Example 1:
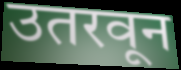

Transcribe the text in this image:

उतरवून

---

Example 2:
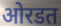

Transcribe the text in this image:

ओरडत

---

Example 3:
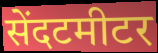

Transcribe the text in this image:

सेंदटमीटर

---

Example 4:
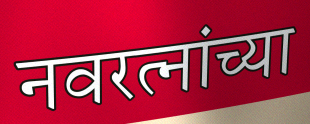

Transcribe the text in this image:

नवरत्नांच्या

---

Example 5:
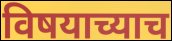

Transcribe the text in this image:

विषयाच्याच